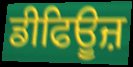
ਡੀਫਿਊਜ਼